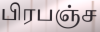
பிரபஞ்ச